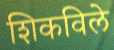
शिकविले